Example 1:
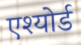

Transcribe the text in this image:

एश्योर्ड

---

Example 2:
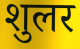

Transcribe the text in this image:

शुलर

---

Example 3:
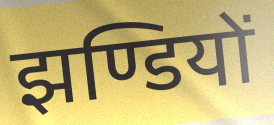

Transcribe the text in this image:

झण्डियों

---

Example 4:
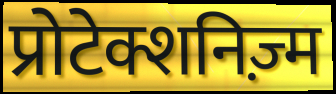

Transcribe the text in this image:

प्रोटेक्शनिज़्म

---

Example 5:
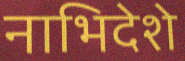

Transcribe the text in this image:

नाभिदेशे